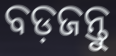
ବଡ଼ଜନ୍ତୁ